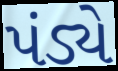
પંડ્યે